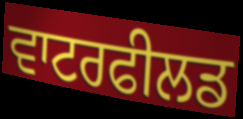
ਵਾਟਰਫੀਲਡ